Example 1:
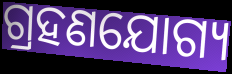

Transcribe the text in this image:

ଗ୍ରହଣଯୋଗ୍ୟ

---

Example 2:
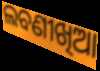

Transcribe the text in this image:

ଲବଣୀଖିଆ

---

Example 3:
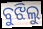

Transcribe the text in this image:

ବୁଝିଲୁ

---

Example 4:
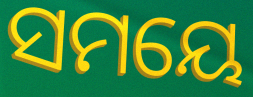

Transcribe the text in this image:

ସମୟେ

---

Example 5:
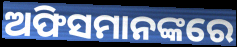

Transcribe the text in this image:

ଅଫିସମାନଙ୍କରେ